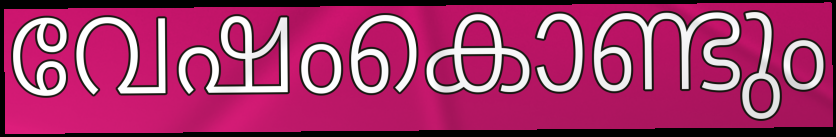
വേഷംകൊണ്ടും